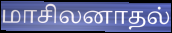
மாசிலனாதல்